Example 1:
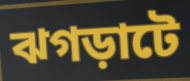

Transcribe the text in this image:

ঝগড়াটে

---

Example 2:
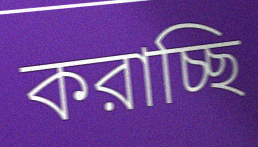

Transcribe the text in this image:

করাচ্ছি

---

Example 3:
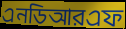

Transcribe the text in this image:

এনডিআরএফ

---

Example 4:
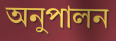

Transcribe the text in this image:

অনুপালন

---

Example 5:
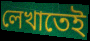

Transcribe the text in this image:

লেখাতেই